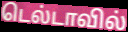
டெல்டாவில்